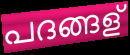
പദങ്ങള്